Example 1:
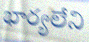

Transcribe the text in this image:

భార్యలేని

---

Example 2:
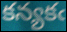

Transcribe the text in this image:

కన్యకఁ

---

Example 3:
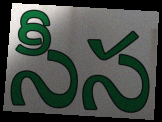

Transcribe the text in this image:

సీస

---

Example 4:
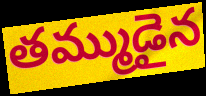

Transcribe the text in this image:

తమ్ముడైన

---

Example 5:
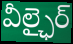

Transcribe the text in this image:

వీల్ఛైర్